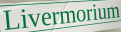
Livermorium